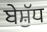
ਬੇਸ਼ੁੱਧ